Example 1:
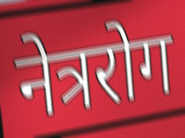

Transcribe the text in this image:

नेत्ररोग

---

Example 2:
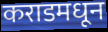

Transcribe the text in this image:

कराडमधून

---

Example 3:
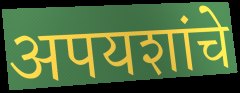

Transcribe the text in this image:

अपयशांचे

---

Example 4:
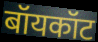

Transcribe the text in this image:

बॉयकॉट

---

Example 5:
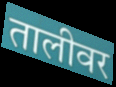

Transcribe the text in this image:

तालीवर